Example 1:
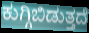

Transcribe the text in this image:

ಕುಗ್ಗಿಬಿಡುತ್ತದೆ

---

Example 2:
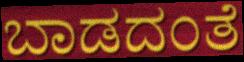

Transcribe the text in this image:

ಬಾಡದಂತೆ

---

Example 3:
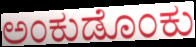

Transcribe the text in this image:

ಅಂಕುಡೊಂಕು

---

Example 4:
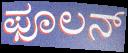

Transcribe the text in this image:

ಫೂಲನ್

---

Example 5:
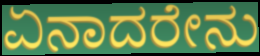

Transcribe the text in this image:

ಏನಾದರೇನು